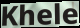
Khele